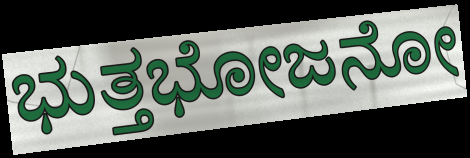
ಭುತ್ತಭೋಜನೋ